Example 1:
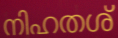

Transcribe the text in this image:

നിഹതശ്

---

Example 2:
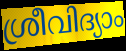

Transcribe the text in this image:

ശ്രീവിദ്യാം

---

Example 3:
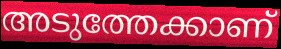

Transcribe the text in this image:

അടുത്തേക്കാണ്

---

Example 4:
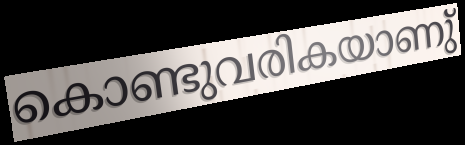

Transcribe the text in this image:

കൊണ്ടുവരികയാണു്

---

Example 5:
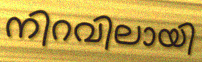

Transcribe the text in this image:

നിറവിലായി